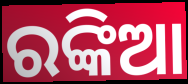
ରଙ୍କିଆ